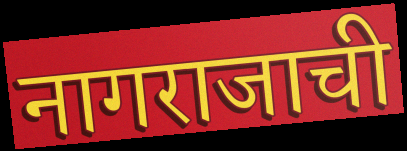
नागराजाची